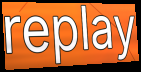
replay